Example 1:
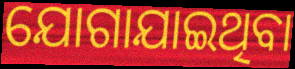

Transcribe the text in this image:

ଯୋଗାଯାଇଥିବା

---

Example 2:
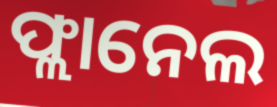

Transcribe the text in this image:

ଫ୍ଲାନେଲ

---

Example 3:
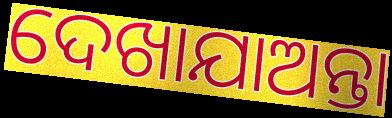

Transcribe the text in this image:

ଦେଖାଯାଅନ୍ତା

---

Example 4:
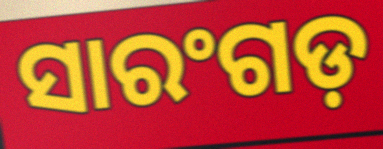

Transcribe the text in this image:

ସାରଂଗଡ଼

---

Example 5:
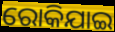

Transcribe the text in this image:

ରୋକିଯାଇ